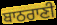
ਬਾਠਰਾਣੀ